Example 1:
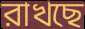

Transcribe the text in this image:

রাখছে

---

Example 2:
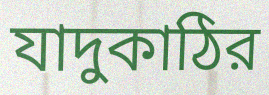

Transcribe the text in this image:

যাদুকাঠির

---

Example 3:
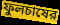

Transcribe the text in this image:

ফুলচাষের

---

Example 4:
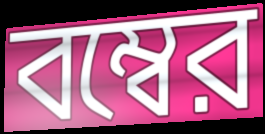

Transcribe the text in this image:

বম্বের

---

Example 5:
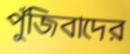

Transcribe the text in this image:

পুঁজিবাদের